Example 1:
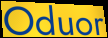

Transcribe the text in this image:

Oduor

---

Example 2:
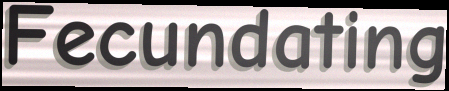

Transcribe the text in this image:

Fecundating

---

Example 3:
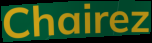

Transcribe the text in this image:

Chairez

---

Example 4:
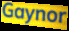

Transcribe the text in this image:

Gaynor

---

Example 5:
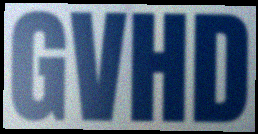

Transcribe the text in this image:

GVHD